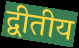
द्वीतीय